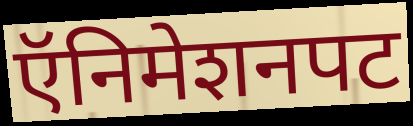
ऍनिमेशनपट